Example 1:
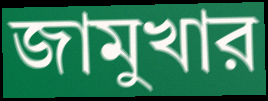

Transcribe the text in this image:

জামুখার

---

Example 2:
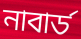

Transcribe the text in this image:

নাবার্ড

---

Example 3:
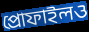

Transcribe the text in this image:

প্রোফাইলও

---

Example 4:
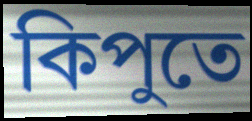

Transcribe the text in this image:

কিপুতে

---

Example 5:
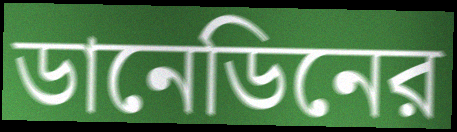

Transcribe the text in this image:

ডানেডিনের